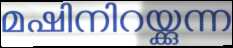
മഷിനിറയ്ക്കുന്ന